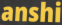
anshi